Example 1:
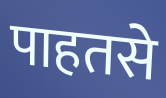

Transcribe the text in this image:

पाहतसे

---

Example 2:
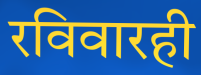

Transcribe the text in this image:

रविवारही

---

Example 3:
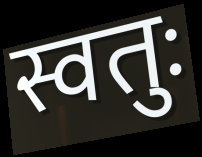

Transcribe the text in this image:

स्वतुः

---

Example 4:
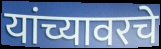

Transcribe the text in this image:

यांच्यावरचे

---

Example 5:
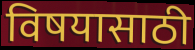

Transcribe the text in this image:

विषयासाठी